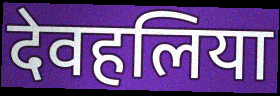
देवहलिया